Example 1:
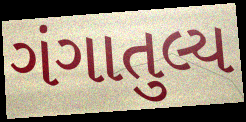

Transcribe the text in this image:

ગંગાતુલ્ય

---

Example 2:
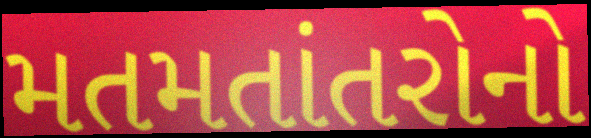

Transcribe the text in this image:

મતમતાંતરોનો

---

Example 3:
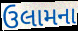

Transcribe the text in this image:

ઉલામના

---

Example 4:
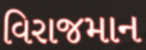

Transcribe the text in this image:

વિરાજમાન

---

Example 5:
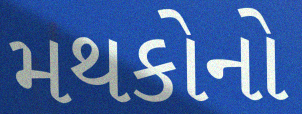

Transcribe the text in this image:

મથકોનો